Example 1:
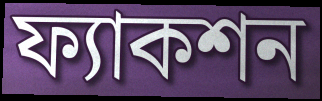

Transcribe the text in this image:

ফ্যাকশন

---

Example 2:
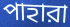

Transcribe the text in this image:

পাহারা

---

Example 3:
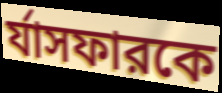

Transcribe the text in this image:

র্যাসফারকে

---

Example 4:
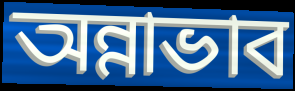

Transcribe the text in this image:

অন্নাভাব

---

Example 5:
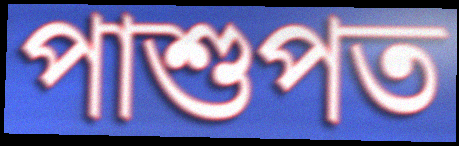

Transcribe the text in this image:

পাশুপত